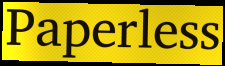
Paperless